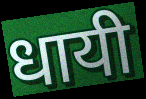
धायी